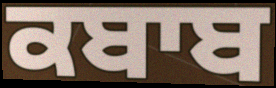
ਕਬਾਬ